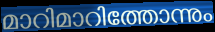
മാറിമാറിത്തോന്നും